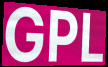
GPL